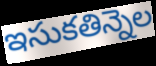
ఇసుకతిన్నెల